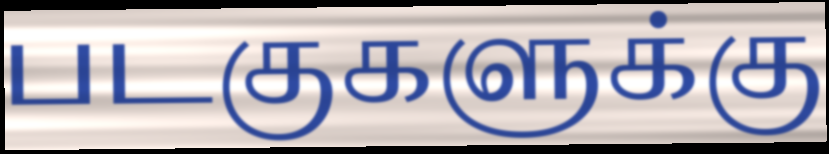
படகுகளுக்கு